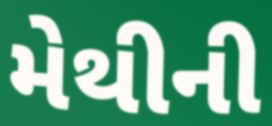
મેથીની